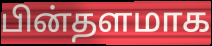
பின்தளமாக